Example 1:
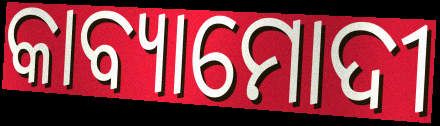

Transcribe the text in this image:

କାବ୍ୟାମୋଦୀ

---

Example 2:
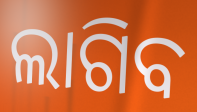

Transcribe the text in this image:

ଲାଗିବ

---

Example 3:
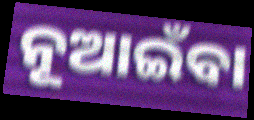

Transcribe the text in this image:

ନୂଆଇଁବା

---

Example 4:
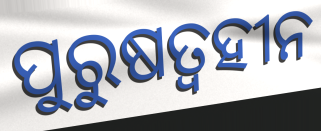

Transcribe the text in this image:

ପୁରୁଷତ୍ୱହୀନ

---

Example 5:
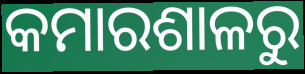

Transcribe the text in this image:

କମାରଶାଳରୁ